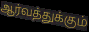
ஆர்வத்துக்கும்